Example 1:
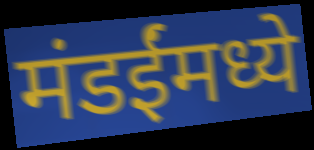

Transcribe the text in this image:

मंडईंमध्ये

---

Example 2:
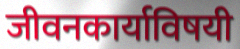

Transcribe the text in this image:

जीवनकार्याविषयी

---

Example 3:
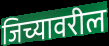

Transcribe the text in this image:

जिच्यावरील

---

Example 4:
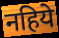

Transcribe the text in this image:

नहिये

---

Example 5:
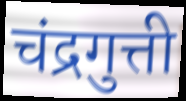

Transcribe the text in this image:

चंद्रगुत्ती